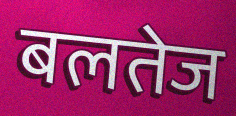
बलतेज